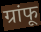
ग्रांफू